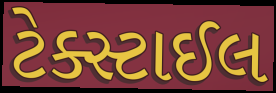
ટેક્સ્ટાઈલ